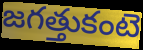
జగత్తుకంటె